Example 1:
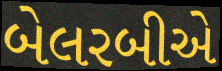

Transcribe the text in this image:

બેલરબીએ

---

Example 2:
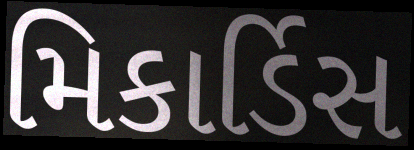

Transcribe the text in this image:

મિકાર્ડિસ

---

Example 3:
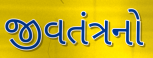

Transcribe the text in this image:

જીવતંત્રનો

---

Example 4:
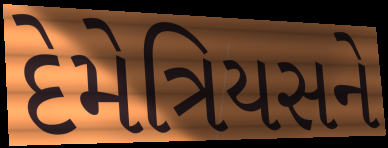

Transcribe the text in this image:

દેમેત્રિયસને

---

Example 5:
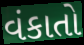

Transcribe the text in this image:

વંકાતો